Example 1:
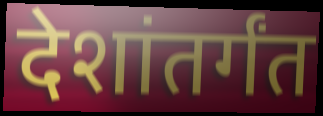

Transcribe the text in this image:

देशांतर्गंत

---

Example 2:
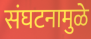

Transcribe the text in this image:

संघटनामुळे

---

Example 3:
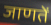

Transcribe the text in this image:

जाणतें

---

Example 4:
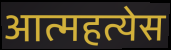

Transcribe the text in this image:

आत्महत्येस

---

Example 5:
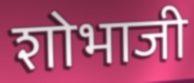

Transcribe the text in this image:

शोभाजी